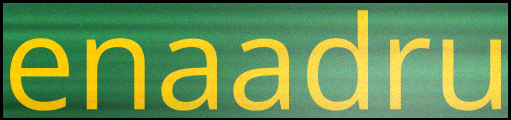
enaadru